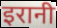
इरानी